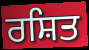
ਰਸ਼ਿਤ